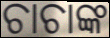
ଚାଚାଙ୍କ